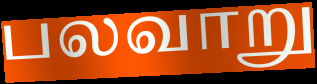
பலவாறு